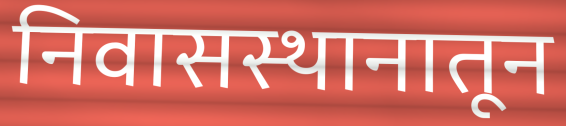
निवासस्थानातून